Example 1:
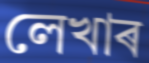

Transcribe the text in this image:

লেখাৰ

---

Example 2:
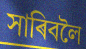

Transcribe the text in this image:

সাৰিবলৈ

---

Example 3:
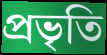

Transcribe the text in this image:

প্ৰভৃতি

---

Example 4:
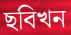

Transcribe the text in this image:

ছবিখন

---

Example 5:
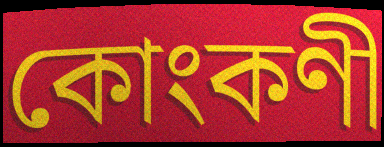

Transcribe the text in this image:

কোংকণী